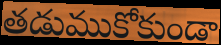
తడుముకోకుండా